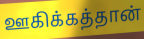
ஊகிக்கத்தான்